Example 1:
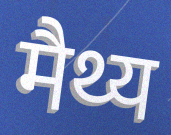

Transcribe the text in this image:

मैथ्य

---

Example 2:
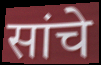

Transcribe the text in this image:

सांचे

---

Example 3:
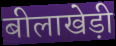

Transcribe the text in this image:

बीलाखेड़ी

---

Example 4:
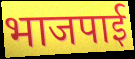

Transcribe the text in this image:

भाजपाई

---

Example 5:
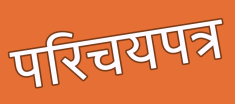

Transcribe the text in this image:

परिचयपत्र